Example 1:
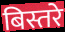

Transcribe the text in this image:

बिस्तरे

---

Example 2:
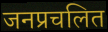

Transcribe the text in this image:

जनप्रचलित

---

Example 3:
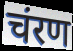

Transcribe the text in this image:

चंरण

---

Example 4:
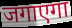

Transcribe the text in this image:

जगाएगा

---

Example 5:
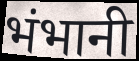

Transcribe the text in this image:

भंभानी